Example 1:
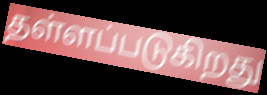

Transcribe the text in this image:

தள்ளப்படுகிறது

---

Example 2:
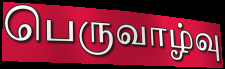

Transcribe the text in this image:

பெருவாழ்வு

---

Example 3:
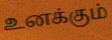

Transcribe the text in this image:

உனக்கும்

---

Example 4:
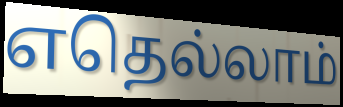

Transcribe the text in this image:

எதெல்லாம்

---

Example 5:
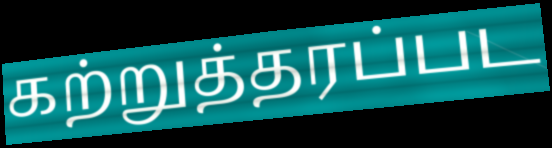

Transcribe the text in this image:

கற்றுத்தரப்பட